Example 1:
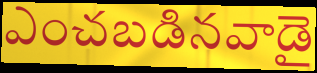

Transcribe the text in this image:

ఎంచబడినవాడై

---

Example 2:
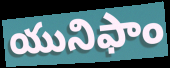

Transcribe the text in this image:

యునిఫాం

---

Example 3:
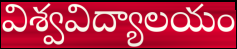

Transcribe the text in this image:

విశ్వవిద్యాలయం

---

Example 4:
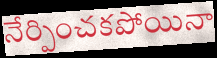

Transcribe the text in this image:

నేర్పించకపోయినా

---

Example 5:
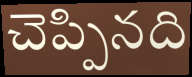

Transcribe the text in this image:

చెప్పినది